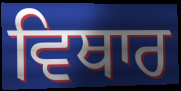
ਵਿਥਾਰ